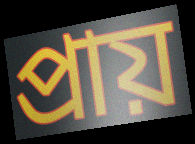
প্ৰায়